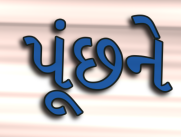
પૂંછને